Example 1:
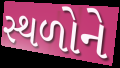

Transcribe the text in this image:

સ્થળોને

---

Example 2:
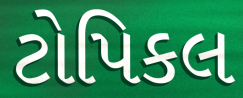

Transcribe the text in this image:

ટોપિકલ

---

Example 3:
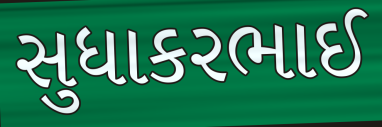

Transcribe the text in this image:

સુધાકરભાઈ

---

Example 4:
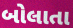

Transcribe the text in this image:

બોલાતા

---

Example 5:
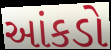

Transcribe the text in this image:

આંકડો